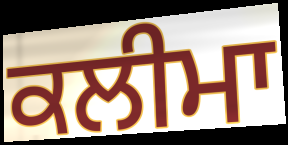
ਕਲੀਮਾ